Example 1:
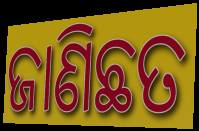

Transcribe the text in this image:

ଜାଣିଛତ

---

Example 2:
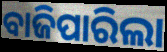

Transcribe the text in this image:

ବାଜିପାରିଲା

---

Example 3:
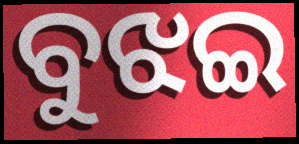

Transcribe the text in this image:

ବୁଝଇ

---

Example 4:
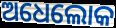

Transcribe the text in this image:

ଅଧେଲୋକ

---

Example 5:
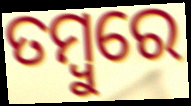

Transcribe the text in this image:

ତମ୍ବୁରେ